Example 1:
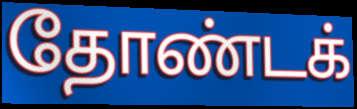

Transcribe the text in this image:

தோண்டக்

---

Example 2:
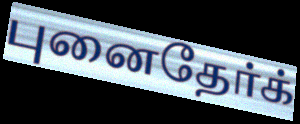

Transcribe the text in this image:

புனைதேர்க்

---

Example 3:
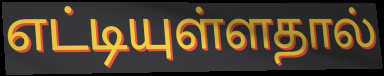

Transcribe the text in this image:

எட்டியுள்ளதால்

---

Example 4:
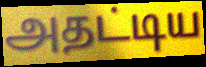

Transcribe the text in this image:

அதட்டிய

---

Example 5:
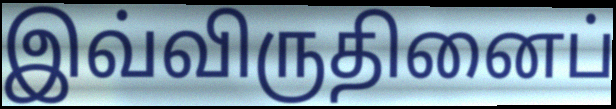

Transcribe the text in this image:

இவ்விருதினைப்